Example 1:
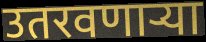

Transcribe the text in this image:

उतरवणाऱ्या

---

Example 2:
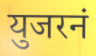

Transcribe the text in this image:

युजरनं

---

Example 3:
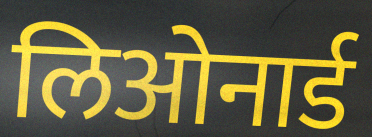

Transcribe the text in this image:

लिओनार्ड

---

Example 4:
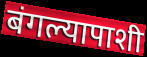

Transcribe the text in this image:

बंगल्यापाशी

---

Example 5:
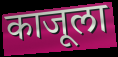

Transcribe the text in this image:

काजूला